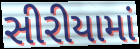
સીરીયામાં